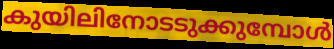
കുയിലിനോടടുക്കുമ്പോൾ